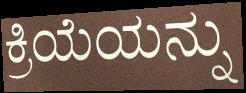
ಕ್ರಿಯೆಯನ್ನು